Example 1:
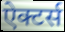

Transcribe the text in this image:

ऐक्टर्स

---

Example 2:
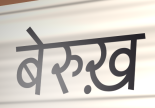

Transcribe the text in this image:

बेरुख़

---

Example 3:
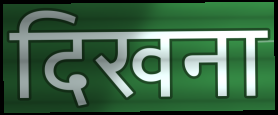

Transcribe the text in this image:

दिखना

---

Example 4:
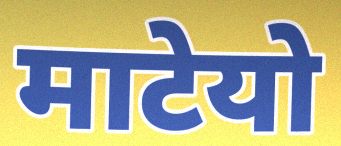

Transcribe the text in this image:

माटेयो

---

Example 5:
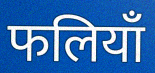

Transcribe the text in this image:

फलियाँ